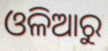
ଓଳିଆରୁ